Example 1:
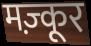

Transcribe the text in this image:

मज़्कूर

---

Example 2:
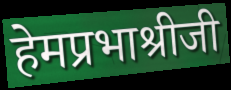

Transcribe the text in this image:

हेमप्रभाश्रीजी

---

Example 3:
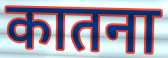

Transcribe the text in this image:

कातना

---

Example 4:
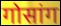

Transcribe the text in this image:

गोसांग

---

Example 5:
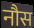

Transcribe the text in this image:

नौस